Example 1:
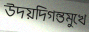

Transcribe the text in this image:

উদয়দিগন্তমুখে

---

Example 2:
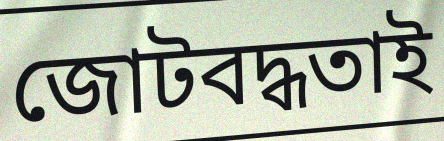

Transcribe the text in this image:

জোটবদ্ধতাই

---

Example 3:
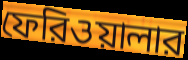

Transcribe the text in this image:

ফেরিওয়ালার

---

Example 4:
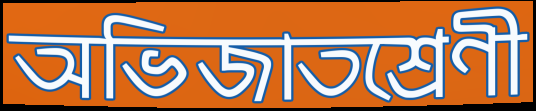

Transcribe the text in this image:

অভিজাতশ্রেণী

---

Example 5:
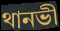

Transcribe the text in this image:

থানভী